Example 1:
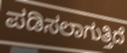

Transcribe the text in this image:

ಪಡಿಸಲಾಗುತ್ತಿದೆ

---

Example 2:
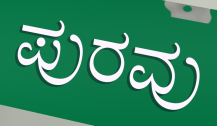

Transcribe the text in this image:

ಪುರವು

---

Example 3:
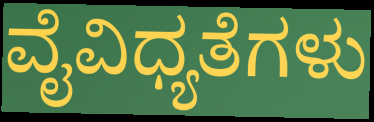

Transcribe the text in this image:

ವೈವಿಧ್ಯತೆಗಳು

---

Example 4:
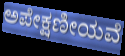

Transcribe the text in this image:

ಅಪೇಕ್ಷಣೀಯವೆ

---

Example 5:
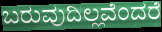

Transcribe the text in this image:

ಬರುವುದಿಲ್ಲವೆಂದರೆ